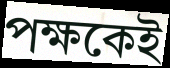
পক্ষকেই